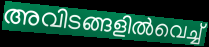
അവിടങ്ങളിൽവെച്ച്